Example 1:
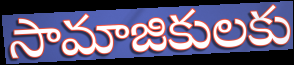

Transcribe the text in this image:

సామాజికులకు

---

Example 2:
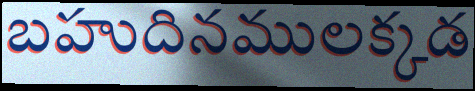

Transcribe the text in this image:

బహుదినములక్కడ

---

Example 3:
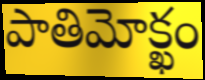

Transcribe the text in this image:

పాతిమోక్ఖం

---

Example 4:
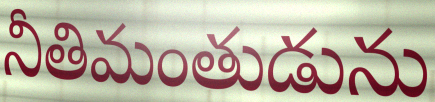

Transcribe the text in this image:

నీతిమంతుడును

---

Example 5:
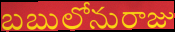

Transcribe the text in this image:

బబులోనురాజు